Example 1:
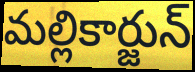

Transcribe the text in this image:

మల్లికార్జున్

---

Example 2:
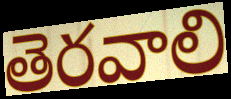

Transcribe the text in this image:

తెరవాలి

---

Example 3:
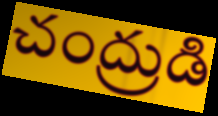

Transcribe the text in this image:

చంద్రుడి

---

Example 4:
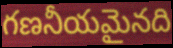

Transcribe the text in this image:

గణనీయమైనది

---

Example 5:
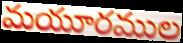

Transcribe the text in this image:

మయూరముల